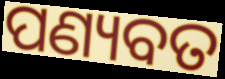
ପଣ୍ୟବତ